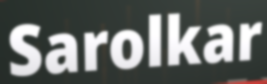
Sarolkar